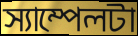
স্যাম্পেলটা